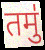
तमु॑